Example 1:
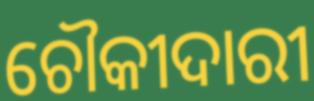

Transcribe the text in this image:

ଚୌକୀଦାରୀ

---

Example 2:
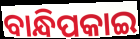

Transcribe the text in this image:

ବାନ୍ଧିପକାଇ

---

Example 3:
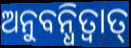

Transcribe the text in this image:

ଅନୁବନ୍ଧିତ୍ଵାତ୍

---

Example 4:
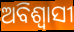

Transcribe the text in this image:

ଅବିଶ୍ଵାସୀ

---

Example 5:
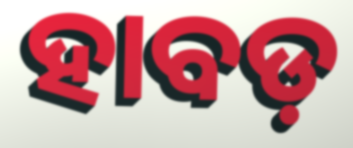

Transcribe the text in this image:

ହାବଡ଼